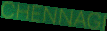
CHENNAGI